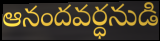
ఆనందవర్ధనుడి